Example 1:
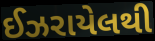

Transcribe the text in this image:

ઈઝરાયેલથી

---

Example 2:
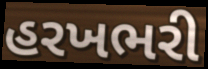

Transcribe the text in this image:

હરખભરી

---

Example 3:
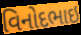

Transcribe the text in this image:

વિનોદભાઇ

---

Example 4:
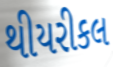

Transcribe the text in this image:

થીયરીકલ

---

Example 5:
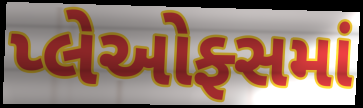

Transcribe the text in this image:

પ્લેઓફ્સમાં